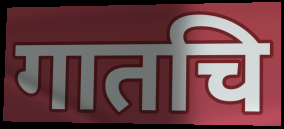
गातचि